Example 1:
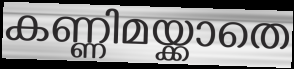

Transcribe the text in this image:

കണ്ണിമയ്ക്കാതെ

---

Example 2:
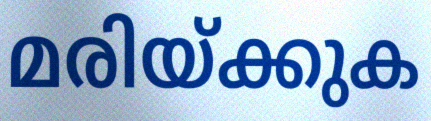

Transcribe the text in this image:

മരിയ്ക്കുക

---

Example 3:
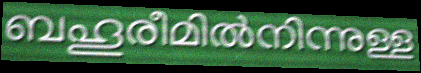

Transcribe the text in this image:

ബഹൂരീമിൽനിന്നുള്ള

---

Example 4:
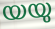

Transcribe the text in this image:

യയു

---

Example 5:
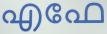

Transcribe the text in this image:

എഫേ